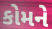
કોમને